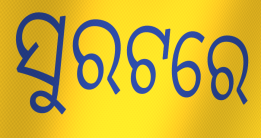
ସୁରଟରେ